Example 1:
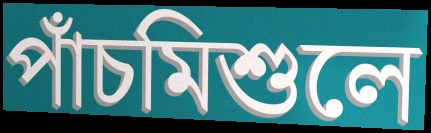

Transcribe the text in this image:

পাঁচমিশুলে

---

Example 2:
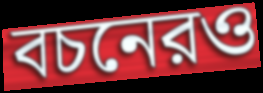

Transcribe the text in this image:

বচনেরও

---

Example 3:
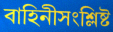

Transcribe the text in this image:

বাহিনীসংশ্লিষ্ট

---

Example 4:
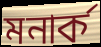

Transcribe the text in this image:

মনার্ক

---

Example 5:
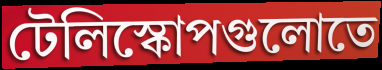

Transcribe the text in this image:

টেলিস্কোপগুলোতে